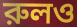
রুলও